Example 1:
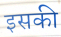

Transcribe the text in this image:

इसकी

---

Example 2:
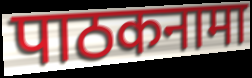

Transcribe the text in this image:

पाठकनामा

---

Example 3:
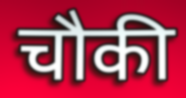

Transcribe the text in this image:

चौकी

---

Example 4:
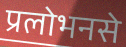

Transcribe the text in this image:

प्रलोभनसे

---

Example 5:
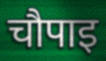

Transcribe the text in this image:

चौपाइ